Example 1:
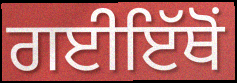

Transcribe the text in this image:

ਗਈਇੱਥੋਂ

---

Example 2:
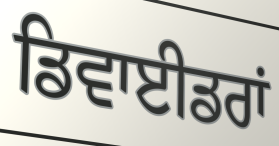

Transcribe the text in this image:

ਡਿਵਾਈਡਰਾਂ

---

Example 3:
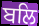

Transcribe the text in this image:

ਬਲਿ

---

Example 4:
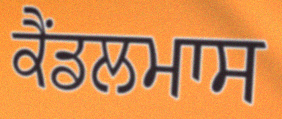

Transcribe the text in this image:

ਕੈਂਡਲਮਾਸ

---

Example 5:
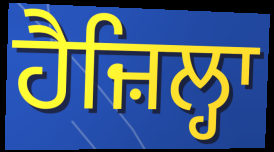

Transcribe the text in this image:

ਹੈਜ਼ਿਲ੍ਹਾ